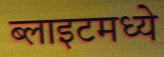
ब्लाइटमध्ये